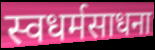
स्वधर्मसाधना